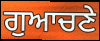
ਗੁਆਚਣੇ